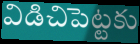
విడిచిపెట్టకు